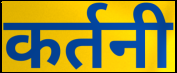
कर्तनी